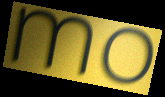
mo